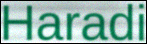
Haradi